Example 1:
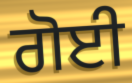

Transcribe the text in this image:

ਗੋਈ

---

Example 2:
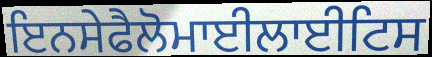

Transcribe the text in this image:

ਇਨਸੇਫੈਲੋਮਾਈਲਾਈਟਿਸ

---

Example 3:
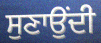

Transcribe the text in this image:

ਸੁਣਾਉਂਦੀ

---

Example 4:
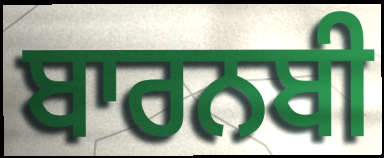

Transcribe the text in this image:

ਬਾਰਨਬੀ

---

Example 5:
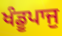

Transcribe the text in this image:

ਖੰਡੂਪਾਜੁ